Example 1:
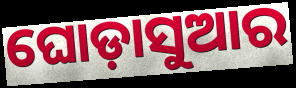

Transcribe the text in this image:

ଘୋଡ଼ାସୁଆର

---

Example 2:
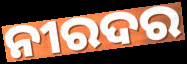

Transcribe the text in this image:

ନୀରଦର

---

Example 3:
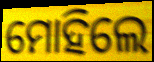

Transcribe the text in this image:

ମୋହିଲେ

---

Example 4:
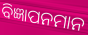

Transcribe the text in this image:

ବିଜ୍ଞାପନମାନ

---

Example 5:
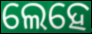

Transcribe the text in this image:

ଲେହେ